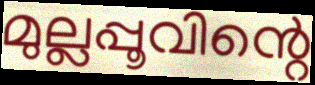
മുല്ലപ്പൂവിന്റെ